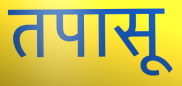
तपासू